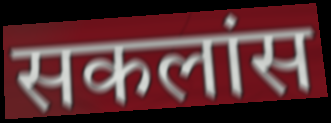
सकलांस